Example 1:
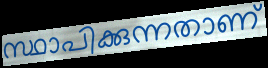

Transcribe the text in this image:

സ്ഥാപിക്കുന്നതാണ്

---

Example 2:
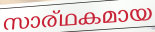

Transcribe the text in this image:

സാര്ഥകമായ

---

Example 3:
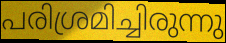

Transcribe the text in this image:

പരിശ്രമിച്ചിരുന്നു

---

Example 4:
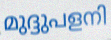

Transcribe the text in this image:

മുദ്ദുപളനി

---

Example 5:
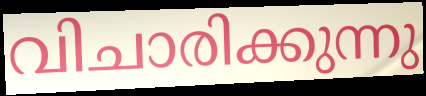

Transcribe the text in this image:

വിചാരിക്കുന്നു